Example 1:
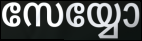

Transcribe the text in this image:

സേയ്യോ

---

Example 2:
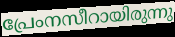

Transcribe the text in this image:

പ്രേംനസീറായിരുന്നു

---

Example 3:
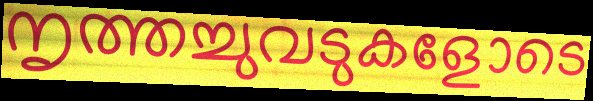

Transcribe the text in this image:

നൃത്തച്ചുവടുകളോടെ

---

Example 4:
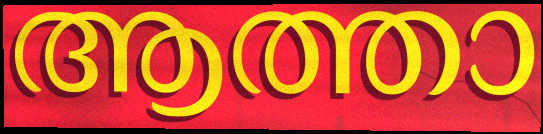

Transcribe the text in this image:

ആത്താ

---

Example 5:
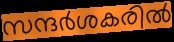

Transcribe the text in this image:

സന്ദർശകരിൽ